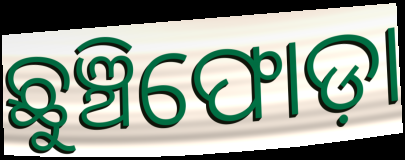
ଛୁଞ୍ଚିଫୋଡ଼ା